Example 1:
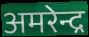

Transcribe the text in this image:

अमरेन्द्र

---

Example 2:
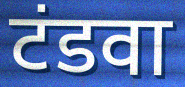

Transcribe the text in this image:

टंडवा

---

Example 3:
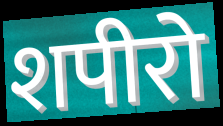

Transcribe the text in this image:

शपीरो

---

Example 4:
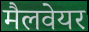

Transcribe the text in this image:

मैलवेयर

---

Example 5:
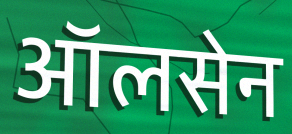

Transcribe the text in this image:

ऑलसेन